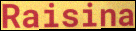
Raisina